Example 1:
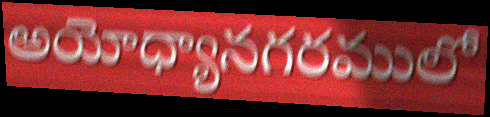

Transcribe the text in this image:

అయోధ్యానగరములో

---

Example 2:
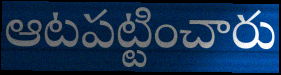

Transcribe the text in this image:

ఆటపట్టించారు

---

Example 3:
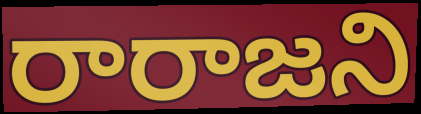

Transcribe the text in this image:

రారాజని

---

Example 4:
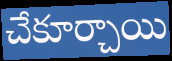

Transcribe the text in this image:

చేకూర్చాయి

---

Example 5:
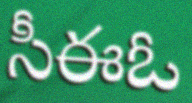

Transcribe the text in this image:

సీఈఓ